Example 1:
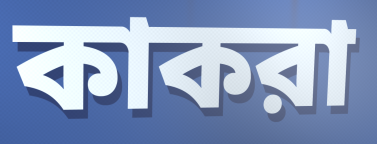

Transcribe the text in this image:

কাকরা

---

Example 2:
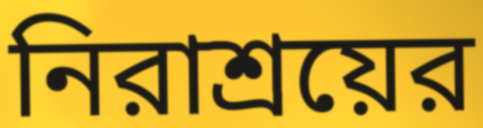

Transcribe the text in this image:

নিরাশ্রয়ের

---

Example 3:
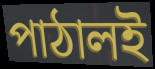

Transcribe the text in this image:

পাঠালই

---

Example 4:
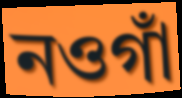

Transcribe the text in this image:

নওগাঁ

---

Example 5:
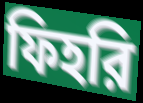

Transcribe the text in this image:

ফিহরি